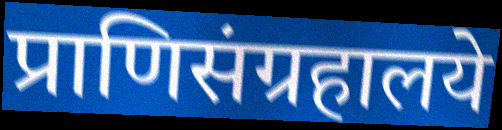
प्राणिसंग्रहालये